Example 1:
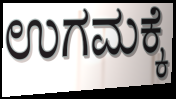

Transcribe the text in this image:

ಉಗಮಕ್ಕೆ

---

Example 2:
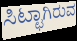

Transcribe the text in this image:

ಸಿಟ್ಟಾಗಿರುವ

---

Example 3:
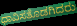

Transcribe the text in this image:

ಧಾವಿಸತೊಡಗಿದರು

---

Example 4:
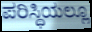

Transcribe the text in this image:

ಪರಿಸ್ಥಿಯಲ್ಲೂ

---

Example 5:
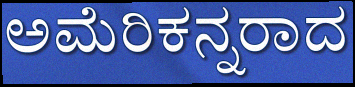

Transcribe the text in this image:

ಅಮೆರಿಕನ್ನರಾದ